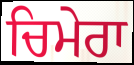
ਚਿਮੇਰਾ